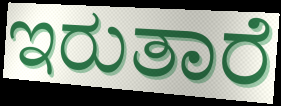
ಇರುತಾರೆ